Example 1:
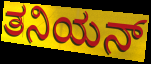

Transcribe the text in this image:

ತನಿಯನ್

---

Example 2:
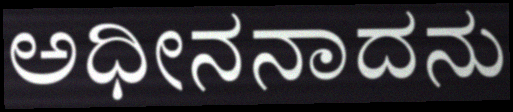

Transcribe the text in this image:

ಅಧೀನನಾದನು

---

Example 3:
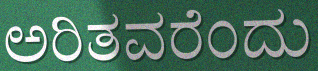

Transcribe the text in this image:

ಅರಿತವರೆಂದು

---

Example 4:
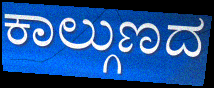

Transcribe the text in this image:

ಕಾಲ್ಗುಣದ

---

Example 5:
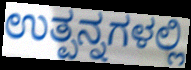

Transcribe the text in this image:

ಉತ್ಪನ್ನಗಳಲ್ಲಿ